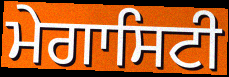
ਮੇਗਾਸਿਟੀ